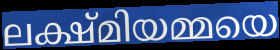
ലക്ഷ്മിയമ്മയെ